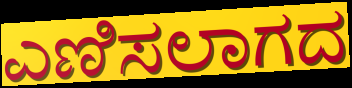
ಎಣಿಸಲಾಗದ